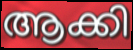
ആക്കി